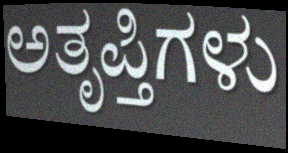
ಅತೃಪ್ತಿಗಳು